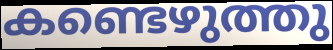
കണ്ടെഴുത്തു